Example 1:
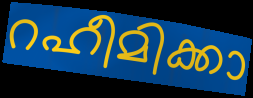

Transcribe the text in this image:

റഹീമിക്കാ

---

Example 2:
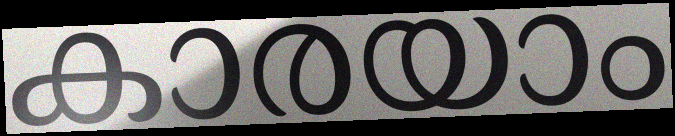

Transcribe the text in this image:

കാരയാം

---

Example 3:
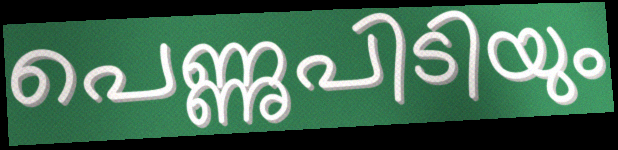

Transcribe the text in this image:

പെണ്ണുപിടിയും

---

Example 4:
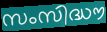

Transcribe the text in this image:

സംസിദ്ധൗ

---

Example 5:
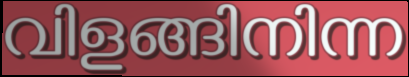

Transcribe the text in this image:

വിളങ്ങിനിന്ന